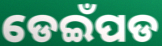
ଡେଇଁପଡ